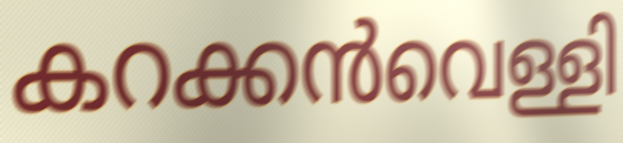
കറക്കൻവെള്ളി